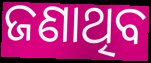
ଜଣାଥିବ